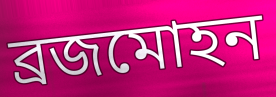
ব্ৰজমোহন